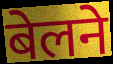
बेलने